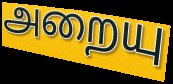
அறையு